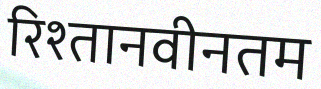
रिश्तानवीनतम